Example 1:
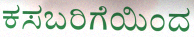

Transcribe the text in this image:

ಕಸಬರಿಗೆಯಿಂದ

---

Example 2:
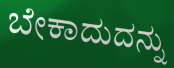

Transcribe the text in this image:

ಬೇಕಾದುದನ್ನು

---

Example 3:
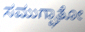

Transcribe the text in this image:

ಸಮುಗ್ಘಾತೋ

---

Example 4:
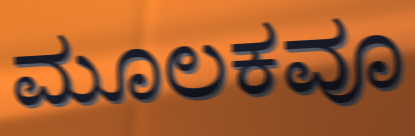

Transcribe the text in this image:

ಮೂಲಕವೂ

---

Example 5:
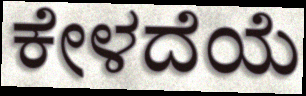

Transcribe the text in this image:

ಕೇಳದೆಯೆ